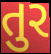
તુર